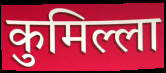
कुमिल्ला